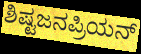
ಶಿಷ್ಟಜನಪ್ರಿಯನ್